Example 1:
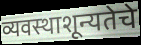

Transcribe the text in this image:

व्यवस्थाशून्यतेचे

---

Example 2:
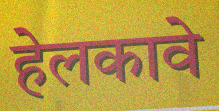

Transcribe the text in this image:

हेलकावे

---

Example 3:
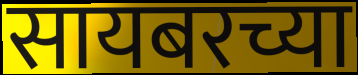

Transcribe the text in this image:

सायबरच्या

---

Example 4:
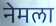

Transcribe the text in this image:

नेमला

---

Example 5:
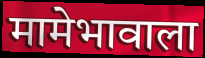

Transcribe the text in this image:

मामेभावाला